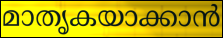
മാതൃകയാക്കാൻ